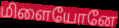
மிளையோனே